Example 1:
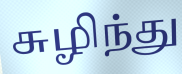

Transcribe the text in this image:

சுழிந்து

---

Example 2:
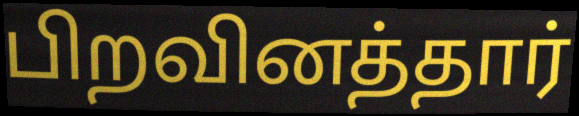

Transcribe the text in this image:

பிறவினத்தார்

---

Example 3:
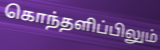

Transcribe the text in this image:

கொந்தளிப்பிலும்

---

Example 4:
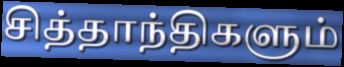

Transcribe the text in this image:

சித்தாந்திகளும்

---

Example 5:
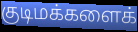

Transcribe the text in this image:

குடிமக்களைக்